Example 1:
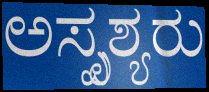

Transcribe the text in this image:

ಅಸ್ಪೃಶ್ಯರು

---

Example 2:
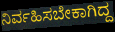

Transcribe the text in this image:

ನಿರ್ವಹಿಸಬೇಕಾಗಿದ್ದ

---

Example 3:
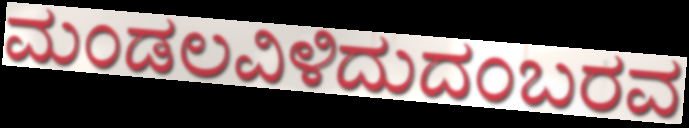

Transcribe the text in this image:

ಮಂಡಲವಿಳಿದುದಂಬರವ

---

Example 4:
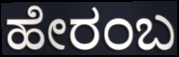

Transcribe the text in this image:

ಹೇರಂಬ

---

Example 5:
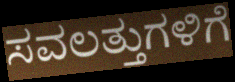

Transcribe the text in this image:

ಸವಲತ್ತುಗಳಿಗೆ